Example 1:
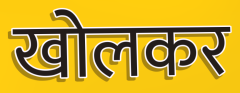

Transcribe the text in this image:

खोलकर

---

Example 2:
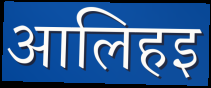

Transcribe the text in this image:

आलिहइ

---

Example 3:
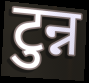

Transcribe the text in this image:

टुन्न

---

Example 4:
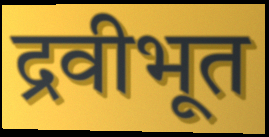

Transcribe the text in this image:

द्रवीभूत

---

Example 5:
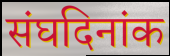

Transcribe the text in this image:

संघदिनांक